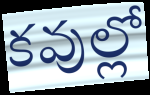
కవుల్లో